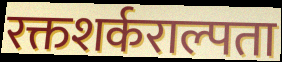
रक्तशर्कराल्पता